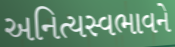
અનિત્યસ્વભાવને